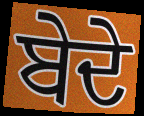
ਬੇਦੇ